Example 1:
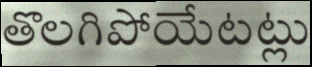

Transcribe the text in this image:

తొలగిపోయేటట్లు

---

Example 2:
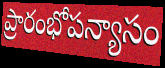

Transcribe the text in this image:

ప్రారంభోపన్యాసం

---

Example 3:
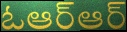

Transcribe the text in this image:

ఓఆర్ఆర్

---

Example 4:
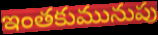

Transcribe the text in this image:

ఇంతకుమునుపు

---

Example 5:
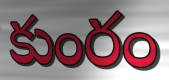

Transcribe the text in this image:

కుంరం